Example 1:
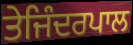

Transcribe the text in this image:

ਤੇਜਿੰਦਰਪਾਲ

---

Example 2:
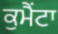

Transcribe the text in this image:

ਕੁਮੈਂਟਾ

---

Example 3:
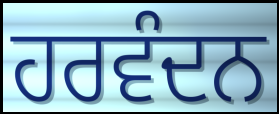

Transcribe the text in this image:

ਹਰਵੰਦਨ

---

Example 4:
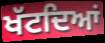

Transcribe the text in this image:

ਖੱਟਦਿਆਂ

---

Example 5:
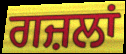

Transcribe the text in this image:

ਗਜ਼ਲਾਂ